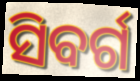
ସିବର୍ଗ